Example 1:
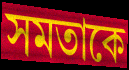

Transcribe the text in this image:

সমতাকে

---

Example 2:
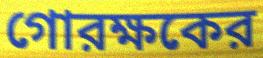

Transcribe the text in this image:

গোরক্ষকের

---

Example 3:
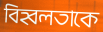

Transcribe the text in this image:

বিহ্বলতাকে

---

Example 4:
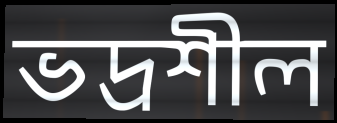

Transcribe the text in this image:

ভদ্রশীল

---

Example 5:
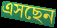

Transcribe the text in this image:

এসছেন